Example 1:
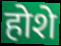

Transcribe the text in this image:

होशे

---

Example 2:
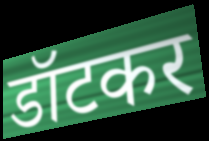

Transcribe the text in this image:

डॉटकर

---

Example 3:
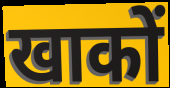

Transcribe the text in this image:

खाकों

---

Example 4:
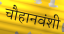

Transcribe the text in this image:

चौहानवंशी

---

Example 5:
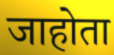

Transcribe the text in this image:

जाहोता